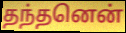
தந்தனென்